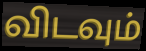
விடவும்